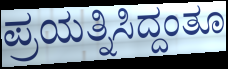
ಪ್ರಯತ್ನಿಸಿದ್ದಂತೂ